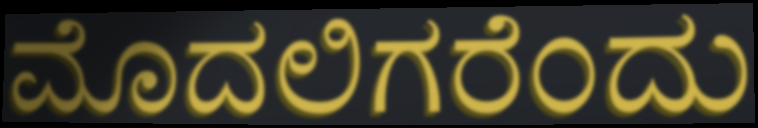
ಮೊದಲಿಗರೆಂದು